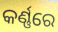
କର୍ଣ୍ଣରେ